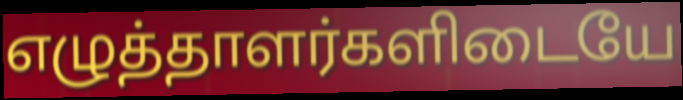
எழுத்தாளர்களிடையே